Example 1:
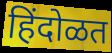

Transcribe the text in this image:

हिंदोळत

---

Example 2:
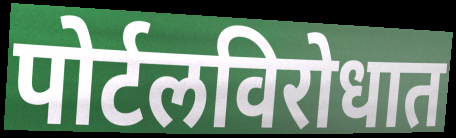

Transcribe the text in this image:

पोर्टलविरोधात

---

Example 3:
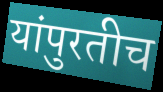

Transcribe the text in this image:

यांपुरतीच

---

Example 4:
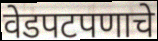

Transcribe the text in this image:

वेडपटपणाचे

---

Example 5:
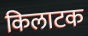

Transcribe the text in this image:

किलाटक